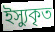
ইস্যুকৃত